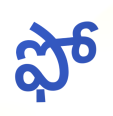
ఫో